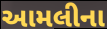
આમલીના